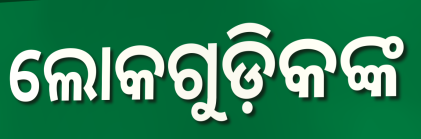
ଲୋକଗୁଡ଼ିକଙ୍କ